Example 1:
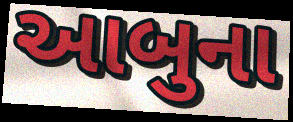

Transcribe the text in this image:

આબુના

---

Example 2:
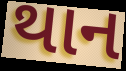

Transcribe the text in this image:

થાન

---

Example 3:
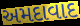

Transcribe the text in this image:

અમદાવાદ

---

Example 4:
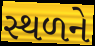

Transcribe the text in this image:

સ્થળને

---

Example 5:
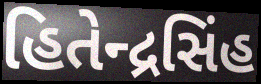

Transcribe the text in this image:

હિતેન્દ્રસિંહ